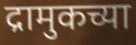
द्रामुकच्या